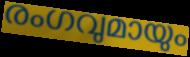
രംഗവുമായും